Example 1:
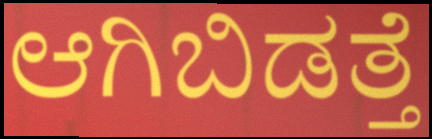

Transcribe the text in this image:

ಆಗಿಬಿಡತ್ತೆ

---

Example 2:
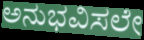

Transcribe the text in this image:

ಅನುಭವಿಸಲೇ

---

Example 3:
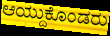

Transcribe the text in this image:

ಆಯ್ದುಕೊಂಡರು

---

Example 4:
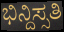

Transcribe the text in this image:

ಭಿನ್ದಿಸ್ಸತಿ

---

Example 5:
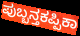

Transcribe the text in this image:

ಪುಬ್ಬನ್ತಕಪ್ಪಿಕಾ